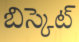
బిస్కెట్